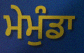
ਮੇਮੁੰਡਾ